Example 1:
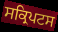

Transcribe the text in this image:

ਸਕ੍ਰਿਪਟਸ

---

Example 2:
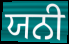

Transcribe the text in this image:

ਯਨੀ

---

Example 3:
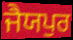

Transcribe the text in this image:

ਜੈਯਪੁਰ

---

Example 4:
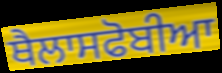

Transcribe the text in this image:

ਥੈਲਾਸਫੋਬੀਆ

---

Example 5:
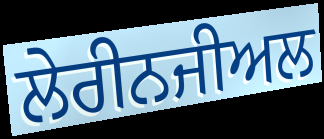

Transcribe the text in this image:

ਲੇਰੀਨਜੀਅਲ